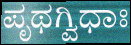
ಪೃಥಗ್ವಿಧಾಃ